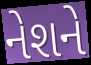
નેશને